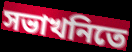
সভাখনিতে